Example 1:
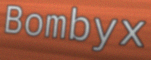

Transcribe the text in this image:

Bombyx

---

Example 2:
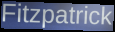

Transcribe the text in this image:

Fitzpatrick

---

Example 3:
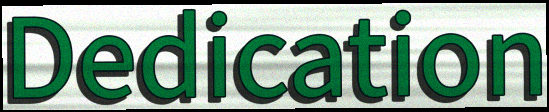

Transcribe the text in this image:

Dedication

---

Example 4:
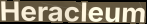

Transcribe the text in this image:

Heracleum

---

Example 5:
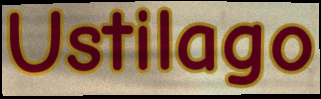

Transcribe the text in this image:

Ustilago